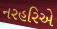
નરહરિએ